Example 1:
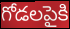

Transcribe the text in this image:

గోడలపైకి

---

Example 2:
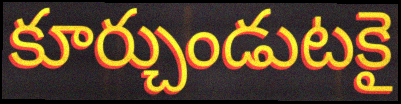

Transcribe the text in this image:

కూర్చుండుటకై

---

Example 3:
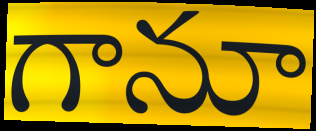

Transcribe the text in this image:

గానూ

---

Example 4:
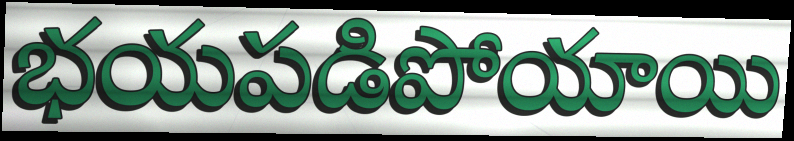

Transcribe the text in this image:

భయపడిపోయాయి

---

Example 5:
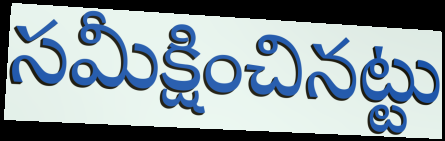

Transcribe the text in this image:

సమీక్షించినట్టు